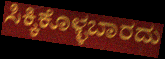
ಸಿಕ್ಕಿಕೊಳ್ಳಬಾರದು